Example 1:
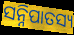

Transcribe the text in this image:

ସନ୍ନିପାତସ୍ୟ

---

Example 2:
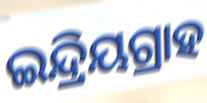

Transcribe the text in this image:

ଇନ୍ଦ୍ରିୟଗ୍ରାହ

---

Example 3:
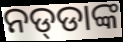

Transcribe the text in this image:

ନଡ୍‌ଡାଙ୍କ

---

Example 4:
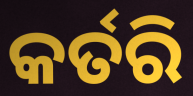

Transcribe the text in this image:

କର୍ତରି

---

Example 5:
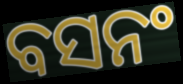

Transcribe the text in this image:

ବସନଂ